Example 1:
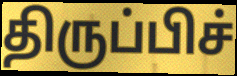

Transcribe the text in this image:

திருப்பிச்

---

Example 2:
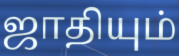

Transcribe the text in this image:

ஜாதியும்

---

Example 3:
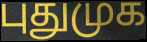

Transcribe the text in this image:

புதுமுக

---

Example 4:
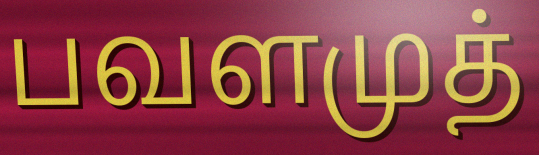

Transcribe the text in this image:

பவளமுத்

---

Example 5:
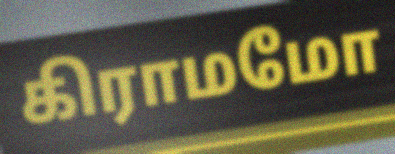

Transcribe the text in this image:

கிராமமோ